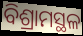
ବିଶ୍ରାମସ୍ଥଳ